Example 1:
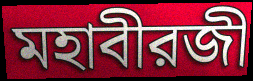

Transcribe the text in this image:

মহাবীরজী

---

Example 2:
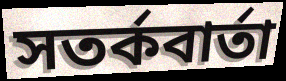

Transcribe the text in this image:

সতর্কবার্তা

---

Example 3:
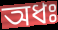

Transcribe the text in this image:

অধঃ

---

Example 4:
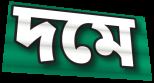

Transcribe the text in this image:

দমে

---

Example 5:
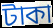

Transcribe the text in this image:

টাকা